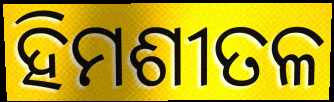
ହିମଶୀତଳ